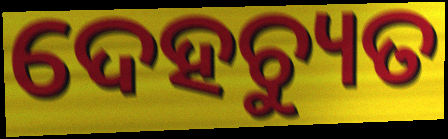
ଦେହଚ୍ୟୁତ